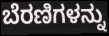
ಬೆರಣಿಗಳನ್ನು